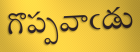
గొప్పవాఁడు